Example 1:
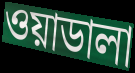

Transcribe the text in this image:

ওয়াডালা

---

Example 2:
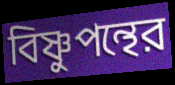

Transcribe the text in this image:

বিষ্ণুপন্থের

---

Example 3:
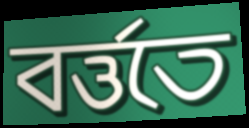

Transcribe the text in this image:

বর্ত্ততে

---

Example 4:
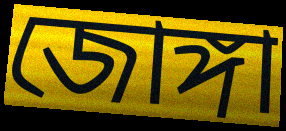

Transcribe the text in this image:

জোঙ্গা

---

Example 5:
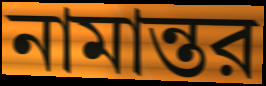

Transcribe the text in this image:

নামান্তর